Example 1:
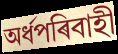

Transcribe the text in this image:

অৰ্ধপৰিবাহী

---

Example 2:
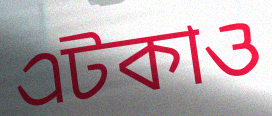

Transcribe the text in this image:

এটকাও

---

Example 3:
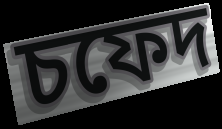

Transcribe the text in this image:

চফেদ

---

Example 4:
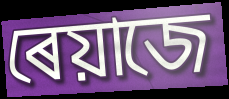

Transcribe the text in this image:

ৰেয়াজে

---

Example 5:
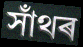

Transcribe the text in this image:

সাঁথৰ